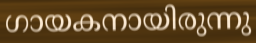
ഗായകനായിരുന്നു